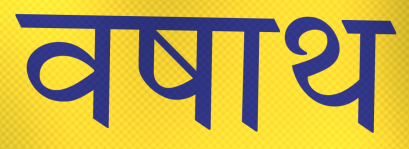
वषाथ